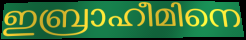
ഇബ്രാഹീമിനെ